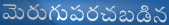
మెరుగుపరచబడిన